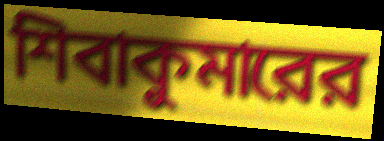
শিবাকুমারের